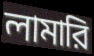
লামারি